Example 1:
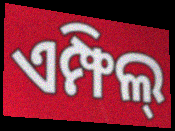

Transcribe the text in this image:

ଏମ୍ଫିଲ୍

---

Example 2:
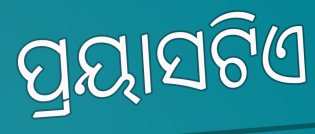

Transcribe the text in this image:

ପ୍ରୟାସଟିଏ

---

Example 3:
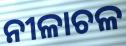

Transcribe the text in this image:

ନୀଳାଚଳ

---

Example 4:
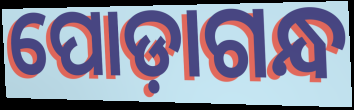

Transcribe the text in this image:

ପୋଡ଼ାଗନ୍ଧ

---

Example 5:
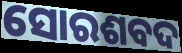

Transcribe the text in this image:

ସୋରଶବଦ